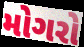
મોગરો